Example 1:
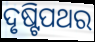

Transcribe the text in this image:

ଦୃଷ୍ଟିପଥର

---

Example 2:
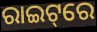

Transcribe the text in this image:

ରାଇଟ୍‌ରେ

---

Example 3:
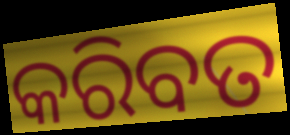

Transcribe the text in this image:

କରିବତ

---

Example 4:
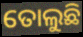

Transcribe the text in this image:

ତୋଲୁଛି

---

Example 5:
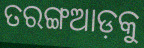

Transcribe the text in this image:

ତରଙ୍ଗଆଡ଼କୁ